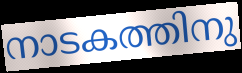
നാടകത്തിനു